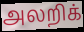
அலறிக்